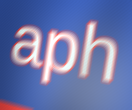
aph